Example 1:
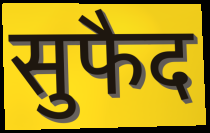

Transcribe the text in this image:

सुफैद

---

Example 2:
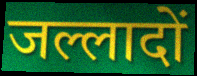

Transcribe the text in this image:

जल्लादों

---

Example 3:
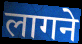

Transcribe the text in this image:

लागने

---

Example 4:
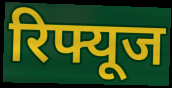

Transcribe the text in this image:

रिफ्यूज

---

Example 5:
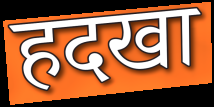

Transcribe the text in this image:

हदखा